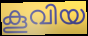
കൂവിയ